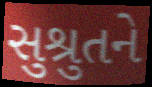
સુશ્રુતને